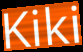
Kiki